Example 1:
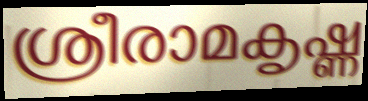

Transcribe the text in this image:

ശ്രീരാമകൃഷ്ണ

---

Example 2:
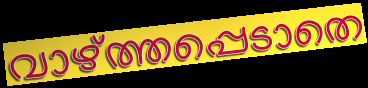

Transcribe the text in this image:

വാഴ്ത്തപ്പെടാതെ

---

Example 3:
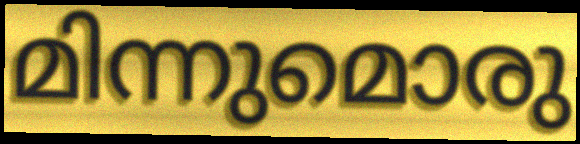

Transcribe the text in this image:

മിന്നുമൊരു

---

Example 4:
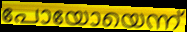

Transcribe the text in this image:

പോയോയെന്ന്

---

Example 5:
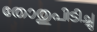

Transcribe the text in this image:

തോതുപിടിച്ചു